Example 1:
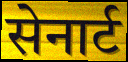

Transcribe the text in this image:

सेनार्ट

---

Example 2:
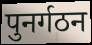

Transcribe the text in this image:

पुनर्गठन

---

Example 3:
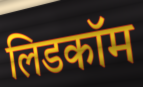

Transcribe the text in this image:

लिडकॉम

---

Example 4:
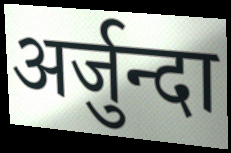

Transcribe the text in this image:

अर्जुन्दा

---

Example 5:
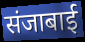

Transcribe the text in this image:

संजाबाई